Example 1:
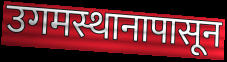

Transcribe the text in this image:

उगमस्थानापासून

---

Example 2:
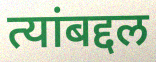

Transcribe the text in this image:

त्यांबद्दल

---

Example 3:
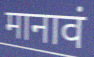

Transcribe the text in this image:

मानावं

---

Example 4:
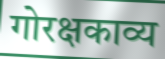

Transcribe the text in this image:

गोरक्षकाव्य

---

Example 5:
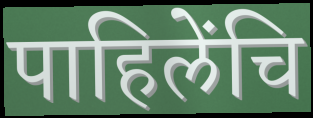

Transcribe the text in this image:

पाहिलेंचि